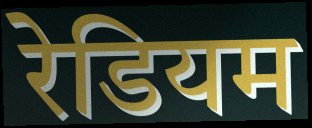
रेडियम